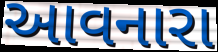
આવનારા